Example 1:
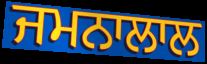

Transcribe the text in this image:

ਜਮਨਾਲਾਲ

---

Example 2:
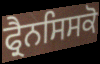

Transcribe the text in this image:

ਫ੍ਰੈਨਸਿਸਕੋ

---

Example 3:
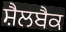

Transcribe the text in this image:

ਸ਼ੈਲਬੈਕ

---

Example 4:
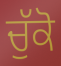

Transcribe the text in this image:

ਚੁੱਕੋ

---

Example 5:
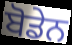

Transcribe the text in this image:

ਬੋਡੇਨ